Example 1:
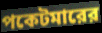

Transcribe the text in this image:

পকেটমারের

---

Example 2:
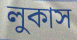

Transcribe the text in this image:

লুকাস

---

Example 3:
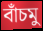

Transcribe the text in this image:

বাঁচমু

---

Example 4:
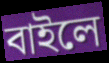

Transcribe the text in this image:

বাইলে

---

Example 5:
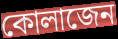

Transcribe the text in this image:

কোলাজেন